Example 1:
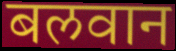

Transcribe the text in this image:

बलवान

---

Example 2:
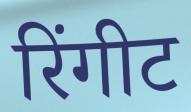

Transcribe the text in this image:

रिंगीट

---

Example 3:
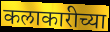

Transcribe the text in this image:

कलाकारीच्या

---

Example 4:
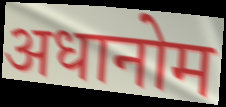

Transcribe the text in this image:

अधानोम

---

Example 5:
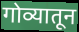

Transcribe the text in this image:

गोव्यातून